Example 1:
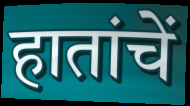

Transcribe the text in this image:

हातांचें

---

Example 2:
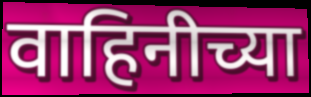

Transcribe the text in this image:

वाहिनीच्या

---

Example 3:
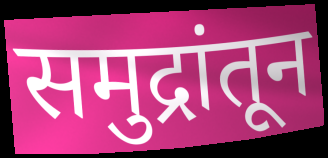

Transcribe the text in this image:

समुद्रांतून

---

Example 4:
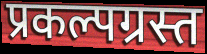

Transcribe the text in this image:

प्रकल्पग्रस्त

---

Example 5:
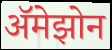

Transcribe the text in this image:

ॲमेझोन